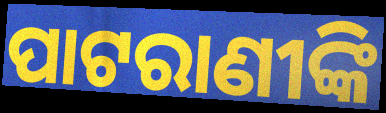
ପାଟରାଣୀଙ୍କି